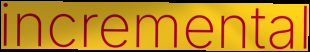
incremental